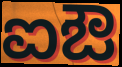
ಐಔ